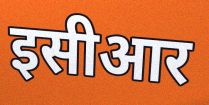
इसीआर